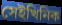
সেইখিনিক